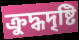
ক্রুদ্ধদৃষ্টি